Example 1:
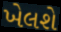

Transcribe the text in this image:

ખેલશે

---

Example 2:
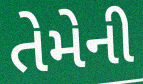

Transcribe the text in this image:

તેમેની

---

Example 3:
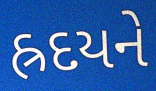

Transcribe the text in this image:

હ્રદયને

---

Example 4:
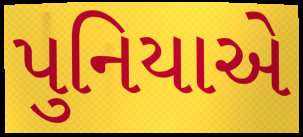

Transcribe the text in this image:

પુનિયાએ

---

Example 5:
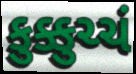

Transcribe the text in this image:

કુક્કુચ્ચં